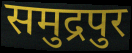
समुद्रपुर